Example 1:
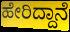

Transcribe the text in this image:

ಹೇರಿದ್ದಾನೆ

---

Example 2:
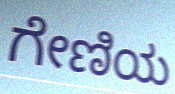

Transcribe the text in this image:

ಗೇಣಿಯ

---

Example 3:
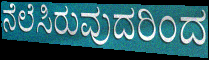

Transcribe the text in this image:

ನೆಲೆಸಿರುವುದರಿಂದ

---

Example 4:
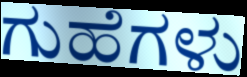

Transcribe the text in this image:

ಗುಹೆಗಳು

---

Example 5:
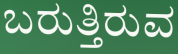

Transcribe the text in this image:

ಬರುತ್ತಿರುವ